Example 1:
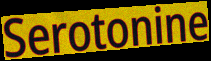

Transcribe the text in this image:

Serotonine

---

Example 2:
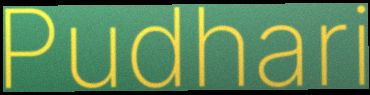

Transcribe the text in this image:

Pudhari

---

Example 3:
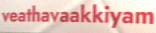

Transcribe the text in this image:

veathavaakkiyam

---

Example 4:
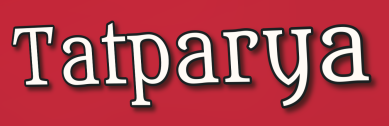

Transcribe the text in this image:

Tatparya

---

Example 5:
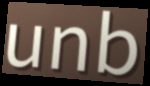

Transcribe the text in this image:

unb